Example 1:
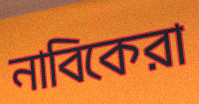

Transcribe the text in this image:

নাবিকেরা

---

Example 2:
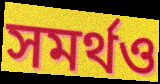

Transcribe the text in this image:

সমর্থও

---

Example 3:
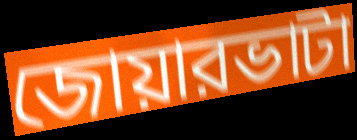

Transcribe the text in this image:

জোয়ারভাটা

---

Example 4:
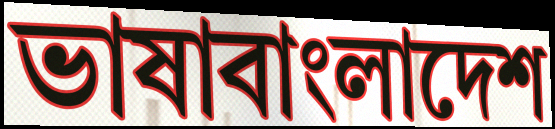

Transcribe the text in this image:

ভাষাবাংলাদেশ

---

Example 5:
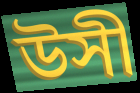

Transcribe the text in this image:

উসী